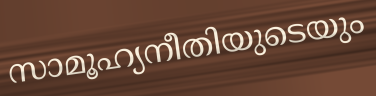
സാമൂഹ്യനീതിയുടെയും